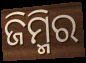
ଜିମ୍ମିର